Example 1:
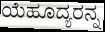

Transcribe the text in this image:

ಯೆಹೂದ್ಯರನ್ನ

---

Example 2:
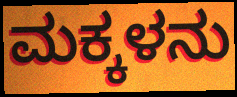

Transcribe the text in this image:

ಮಕ್ಕಳನು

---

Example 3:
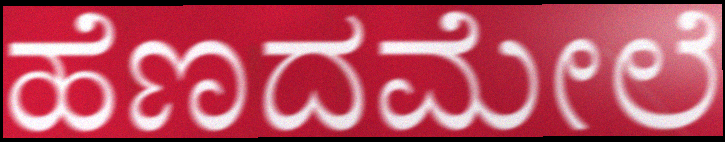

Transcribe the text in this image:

ಹೆಣದಮೇಲೆ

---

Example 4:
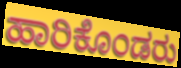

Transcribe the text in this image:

ಹಾರಿಕೊಂಡರು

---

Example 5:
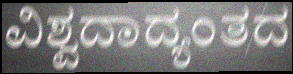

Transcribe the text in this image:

ವಿಶ್ವದಾದ್ಯಂತದ